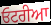
ਓਟਰੀਆ